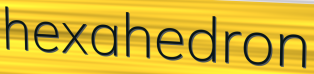
hexahedron